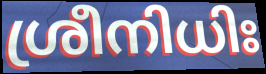
ശ്രീനിധിഃ